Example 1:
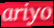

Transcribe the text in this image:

ariyo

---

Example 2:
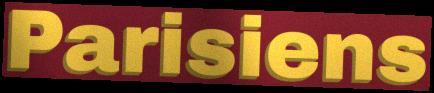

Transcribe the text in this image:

Parisiens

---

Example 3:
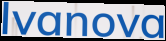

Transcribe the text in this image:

Ivanova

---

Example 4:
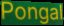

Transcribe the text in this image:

Pongal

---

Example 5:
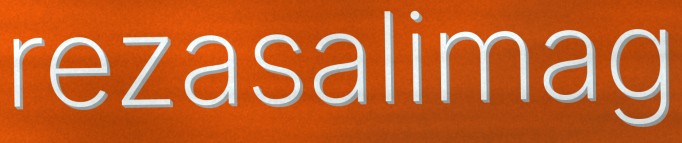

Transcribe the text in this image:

rezasalimag